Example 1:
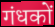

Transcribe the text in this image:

गंधकों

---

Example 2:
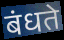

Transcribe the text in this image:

बंधते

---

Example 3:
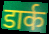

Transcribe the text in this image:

डार्क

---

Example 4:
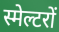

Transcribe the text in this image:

स्मेल्टरों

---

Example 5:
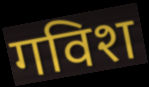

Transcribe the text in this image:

गविश